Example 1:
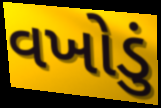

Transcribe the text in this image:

વખોડું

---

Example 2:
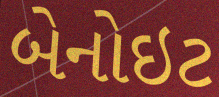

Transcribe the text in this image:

બેનોઇટ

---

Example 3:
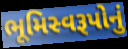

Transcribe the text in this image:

ભૂમિસ્વરૂપોનું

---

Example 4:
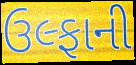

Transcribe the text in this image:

ઉલ્ફાની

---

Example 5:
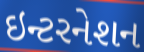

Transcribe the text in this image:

ઇન્ટરનેશન